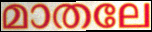
മാതലേ